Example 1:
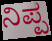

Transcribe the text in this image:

ನಿಪ್ಪ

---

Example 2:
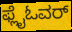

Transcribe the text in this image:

ಫ್ಲೈಓವರ್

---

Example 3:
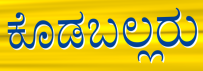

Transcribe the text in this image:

ಕೊಡಬಲ್ಲರು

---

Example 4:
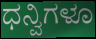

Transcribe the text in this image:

ಧನ್ವಿಗಳೂ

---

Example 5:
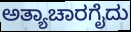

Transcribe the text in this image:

ಅತ್ಯಾಚಾರಗೈದು